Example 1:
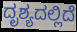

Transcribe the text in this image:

ದೃಶ್ಯದಲ್ಲಿದೆ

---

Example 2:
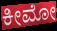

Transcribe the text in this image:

ಕೀಮೋ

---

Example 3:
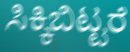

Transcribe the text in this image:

ಸಿಕ್ಕಿಬಿಟ್ಟರೆ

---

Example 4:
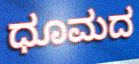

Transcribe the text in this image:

ಧೂಮದ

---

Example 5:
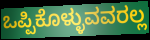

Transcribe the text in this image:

ಒಪ್ಪಿಕೊಳ್ಳುವವರಲ್ಲ